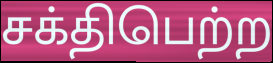
சக்திபெற்ற